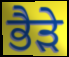
ਭੈਡ਼ੇ